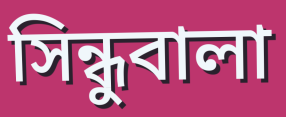
সিন্ধুবালা